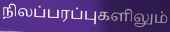
நிலப்பரப்புகளிலும்